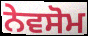
ਨੇਵਸੋਮ